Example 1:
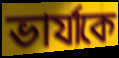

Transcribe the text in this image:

ভার্যাকে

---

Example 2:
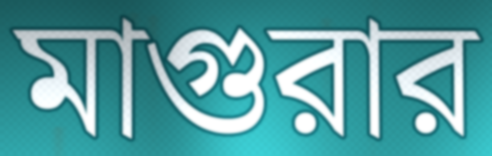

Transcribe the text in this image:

মাগুরার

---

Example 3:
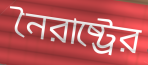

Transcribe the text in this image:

নৈরাষ্ট্রের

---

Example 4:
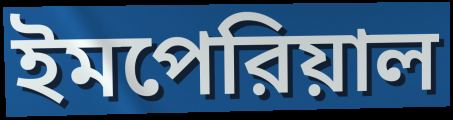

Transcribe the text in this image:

ইমপেরিয়াল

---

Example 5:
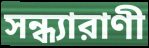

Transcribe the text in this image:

সন্ধ্যারাণী